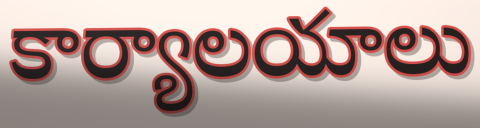
కార్యాలయాలు